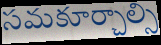
సమకూర్చాల్సి